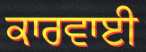
ਕਾਰਵਾਈ